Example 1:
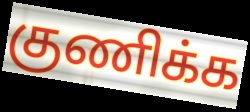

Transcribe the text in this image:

குணிக்க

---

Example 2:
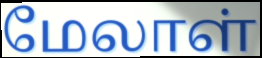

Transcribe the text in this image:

மேலாள்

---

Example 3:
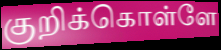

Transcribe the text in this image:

குறிக்கொள்ளே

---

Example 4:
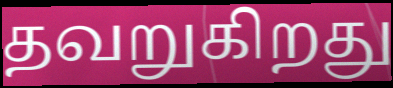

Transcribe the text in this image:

தவறுகிறது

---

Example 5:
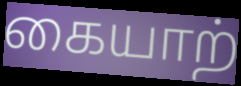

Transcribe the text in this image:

கையாற்